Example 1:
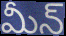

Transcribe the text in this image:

మీన్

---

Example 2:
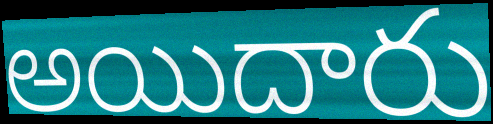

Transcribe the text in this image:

అయిదారు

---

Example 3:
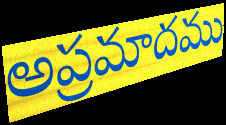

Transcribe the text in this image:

అప్రమాదము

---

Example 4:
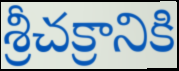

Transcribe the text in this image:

శ్రీచక్రానికి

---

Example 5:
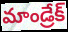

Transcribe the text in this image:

మాండ్రేక్